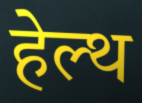
हेल्थ